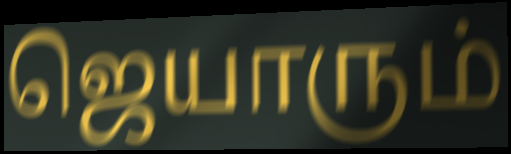
ஜெயாரும்